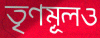
তৃণমূলও